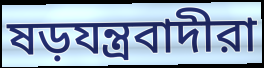
ষড়যন্ত্রবাদীরা